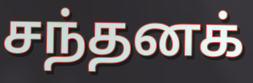
சந்தனக்